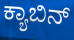
ಕ್ಯಾಬಿನ್